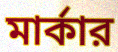
মার্কার